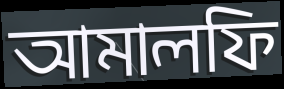
আমালফি